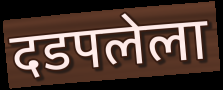
दडपलेला